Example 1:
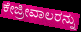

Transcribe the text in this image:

ಕೇಜ್ರೀವಾಲರನ್ನು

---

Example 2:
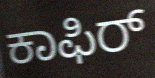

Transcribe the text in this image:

ಕಾಫಿರ್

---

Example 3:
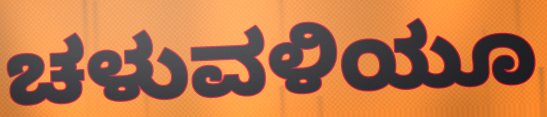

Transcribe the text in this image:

ಚಳುವಳಿಯೂ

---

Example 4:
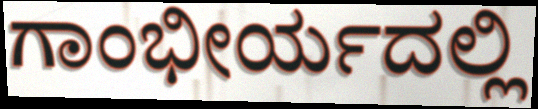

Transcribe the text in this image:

ಗಾಂಭೀರ್ಯದಲ್ಲಿ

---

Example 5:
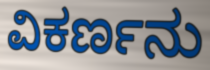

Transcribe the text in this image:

ವಿಕರ್ಣನು